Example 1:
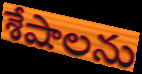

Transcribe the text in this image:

శేషాలను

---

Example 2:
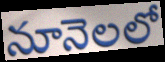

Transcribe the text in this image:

నూనెలలో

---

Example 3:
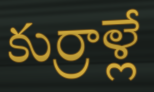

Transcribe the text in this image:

కుర్రాళ్లే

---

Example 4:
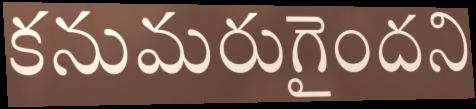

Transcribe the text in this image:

కనుమరుగైందని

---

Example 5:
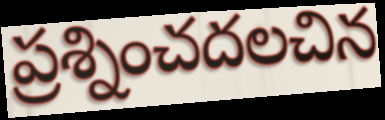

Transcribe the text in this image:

ప్రశ్నించదలచిన